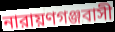
নারায়ণগঞ্জবাসী